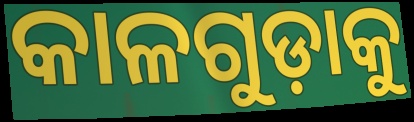
କାଳଗୁଡ଼ାକୁ